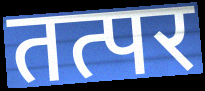
तत्पर